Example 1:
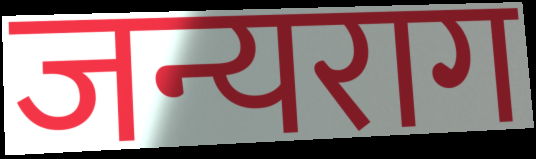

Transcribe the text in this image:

जन्यराग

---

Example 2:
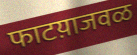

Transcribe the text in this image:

फाटय़ाजवळ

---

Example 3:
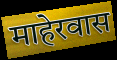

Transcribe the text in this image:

माहेरवास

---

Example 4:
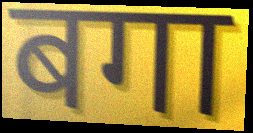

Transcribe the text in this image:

बगा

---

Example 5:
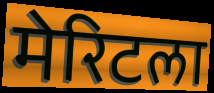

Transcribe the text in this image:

मेरिटला